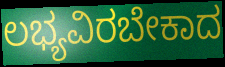
ಲಭ್ಯವಿರಬೇಕಾದ